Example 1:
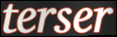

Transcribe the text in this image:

terser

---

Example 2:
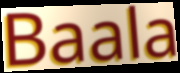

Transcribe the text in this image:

Baala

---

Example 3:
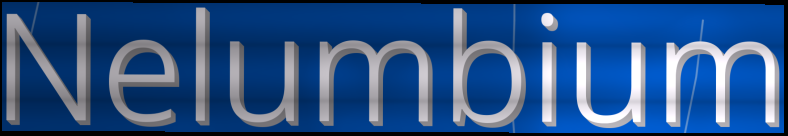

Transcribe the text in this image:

Nelumbium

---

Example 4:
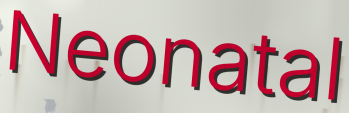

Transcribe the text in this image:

Neonatal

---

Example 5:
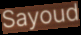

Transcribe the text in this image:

Sayoud